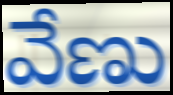
వేణు